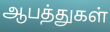
ஆபத்துகள்